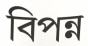
বিপন্ন